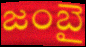
జంబై